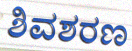
ಶಿವಶರಣ